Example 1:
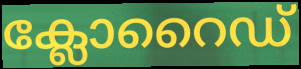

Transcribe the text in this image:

ക്ലോറൈഡ്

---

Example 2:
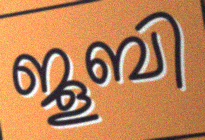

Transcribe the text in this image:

ജൂബി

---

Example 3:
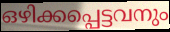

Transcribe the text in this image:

ഒഴിക്കപ്പെട്ടവനും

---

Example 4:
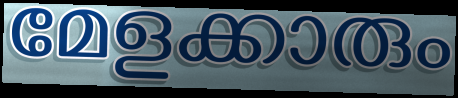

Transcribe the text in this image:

മേളക്കാരും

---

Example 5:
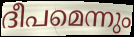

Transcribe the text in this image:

ദീപമെന്നും